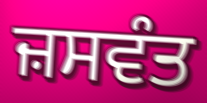
ਜ਼ਸਵੰਤ